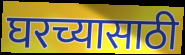
घरच्यासाठी